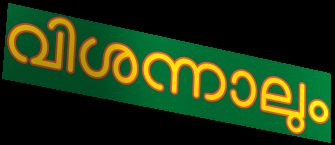
വിശന്നാലും